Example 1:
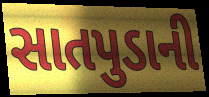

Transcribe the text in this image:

સાતપુડાની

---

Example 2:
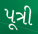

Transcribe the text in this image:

પૂત્રી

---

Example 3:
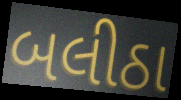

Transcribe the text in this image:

બલીઠા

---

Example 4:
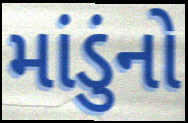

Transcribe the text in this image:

માંડુંનો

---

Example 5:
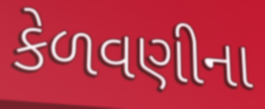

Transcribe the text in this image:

કેળવણીના